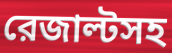
রেজাল্টসহ